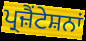
ਪ੍ਰਜ਼ੈਂਟੇਸ਼ਨਾਂ